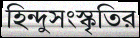
হিন্দুসংস্কৃতির